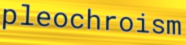
pleochroism